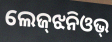
ଲେଜ୍‌ଝନିଓଭ୍